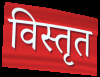
विस्तृत